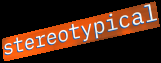
stereotypical